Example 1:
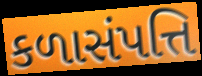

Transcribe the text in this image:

કળાસંપત્તિ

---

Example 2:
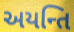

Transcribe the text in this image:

અયન્તિ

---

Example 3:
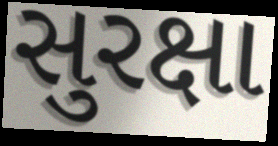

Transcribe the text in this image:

સુરક્ષા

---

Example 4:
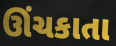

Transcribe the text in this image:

ઊંચકાતા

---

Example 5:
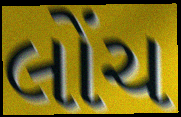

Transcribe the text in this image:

લોંચ